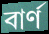
বাৰ্ণ